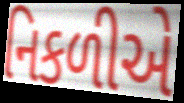
નિકળીએ